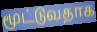
மூட்டுவதாக